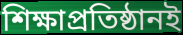
শিক্ষাপ্রতিষ্ঠানই